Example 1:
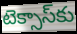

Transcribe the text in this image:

టెక్సాస్‌కు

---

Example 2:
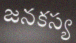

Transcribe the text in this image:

జనకస్య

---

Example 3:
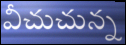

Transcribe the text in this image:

వీచుచున్న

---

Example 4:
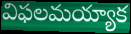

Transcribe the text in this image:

విఫలమయ్యాక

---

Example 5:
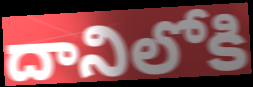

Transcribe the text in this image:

దానిలోకి